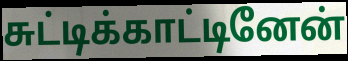
சுட்டிக்காட்டினேன்